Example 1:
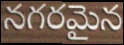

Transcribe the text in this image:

నగరమైన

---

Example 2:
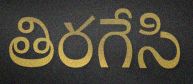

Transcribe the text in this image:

తిరగేసి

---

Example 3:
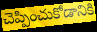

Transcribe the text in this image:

చెప్పించుకోడానికి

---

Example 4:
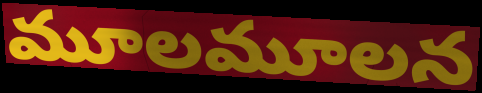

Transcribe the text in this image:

మూలమూలన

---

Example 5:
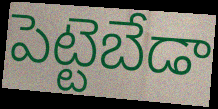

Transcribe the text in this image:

పెట్టెబేడా